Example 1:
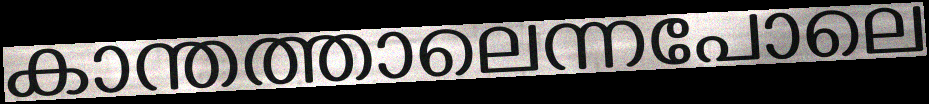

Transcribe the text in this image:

കാന്തത്താലെന്നപോലെ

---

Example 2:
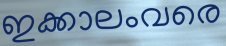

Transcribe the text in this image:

ഇക്കാലംവരെ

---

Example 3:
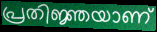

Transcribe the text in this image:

പ്രതിജ്ഞയാണ്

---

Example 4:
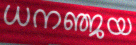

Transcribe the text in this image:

ധനഞ്ജയ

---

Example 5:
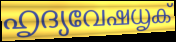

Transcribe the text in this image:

ഹൃദ്യവേഷധൃക്